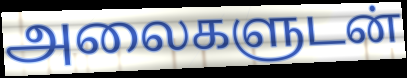
அலைகளுடன்